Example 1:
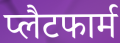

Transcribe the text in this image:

प्लैटफार्म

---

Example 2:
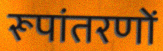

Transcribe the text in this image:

रूपांतरणों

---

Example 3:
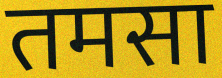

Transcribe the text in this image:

तमसा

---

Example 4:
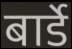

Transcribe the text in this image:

बार्डे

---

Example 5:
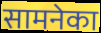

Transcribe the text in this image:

सामनेका